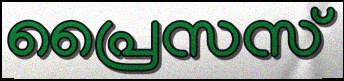
പ്രൈസസ്